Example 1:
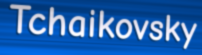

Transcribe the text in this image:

Tchaikovsky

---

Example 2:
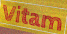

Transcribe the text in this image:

Vitam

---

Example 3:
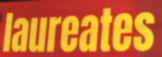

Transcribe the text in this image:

laureates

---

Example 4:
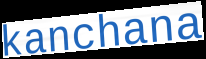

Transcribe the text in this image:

kanchana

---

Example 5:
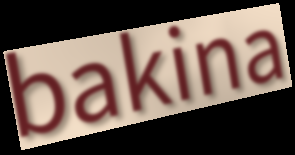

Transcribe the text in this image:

bakina